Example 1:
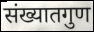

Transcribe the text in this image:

संख्यातगुण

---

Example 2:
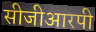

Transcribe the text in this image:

सीजीआरपी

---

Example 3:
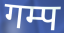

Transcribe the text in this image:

गम्प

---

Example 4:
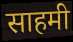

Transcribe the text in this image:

साहमी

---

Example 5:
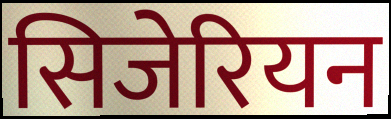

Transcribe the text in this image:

सिजेरियन